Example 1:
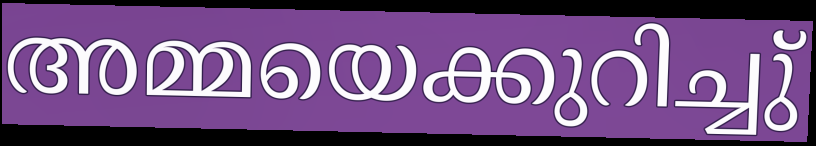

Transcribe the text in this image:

അമ്മയെക്കുറിച്ചു്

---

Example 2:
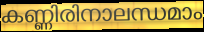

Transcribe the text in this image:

കണ്ണിരിനാലന്ധമാം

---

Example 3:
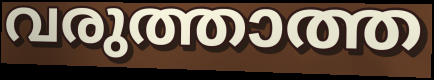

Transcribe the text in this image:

വരുത്താത്ത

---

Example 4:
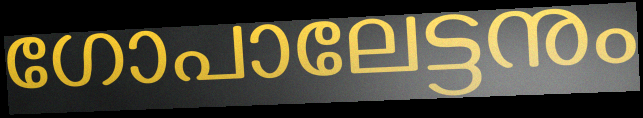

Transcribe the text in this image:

ഗോപാലേട്ടനും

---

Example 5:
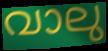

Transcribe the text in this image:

വാലു